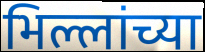
भिल्लांच्या